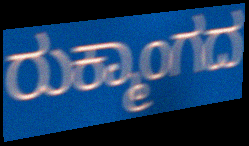
ರುಕ್ಮಾಂಗದ